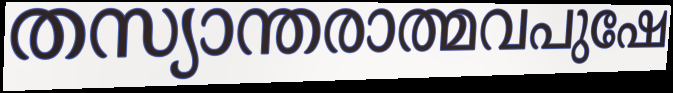
തസ്യാന്തരാത്മവപുഷേ